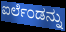
ಐರ್ಲೆಂಡನ್ನು